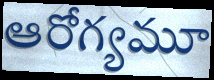
ఆరోగ్యమూ